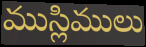
ముస్లిములు